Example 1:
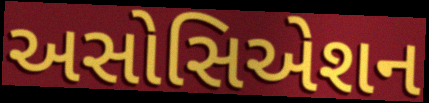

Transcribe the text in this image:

અસોસિએશન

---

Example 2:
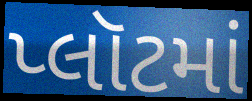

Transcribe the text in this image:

પ્લૉટમાં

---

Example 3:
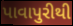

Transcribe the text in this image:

પાવાપુરીથી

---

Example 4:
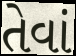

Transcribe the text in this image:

તેવાં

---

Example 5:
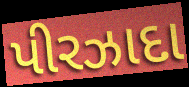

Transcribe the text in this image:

પીરઝાદા